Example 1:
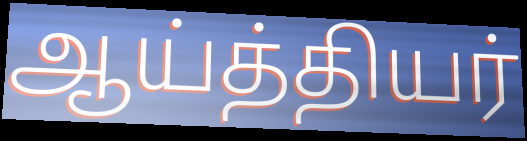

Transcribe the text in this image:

ஆய்த்தியர்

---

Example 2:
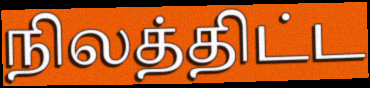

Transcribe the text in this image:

நிலத்திட்ட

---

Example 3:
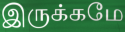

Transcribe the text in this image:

இருக்கமே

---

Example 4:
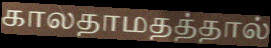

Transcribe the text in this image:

காலதாமதத்தால்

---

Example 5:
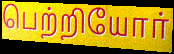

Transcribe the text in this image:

பெற்றியோர்